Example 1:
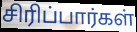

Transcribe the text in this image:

சிரிப்பார்கள்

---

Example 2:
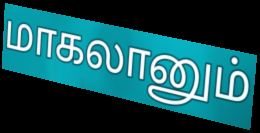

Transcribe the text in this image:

மாகலானும்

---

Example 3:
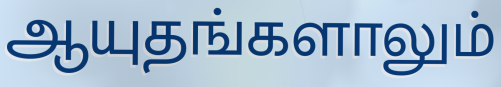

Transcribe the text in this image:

ஆயுதங்களாலும்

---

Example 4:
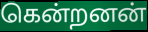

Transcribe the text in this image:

கென்றனன்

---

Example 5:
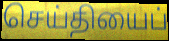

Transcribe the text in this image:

செய்தியைப்